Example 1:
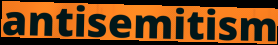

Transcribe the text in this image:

antisemitism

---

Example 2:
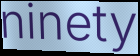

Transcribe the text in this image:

ninety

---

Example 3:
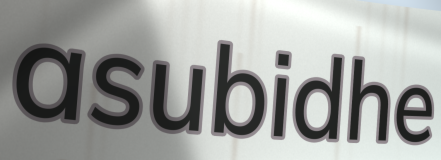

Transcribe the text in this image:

asubidhe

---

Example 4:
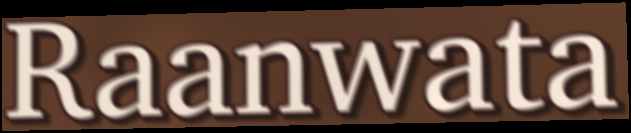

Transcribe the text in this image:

Raanwata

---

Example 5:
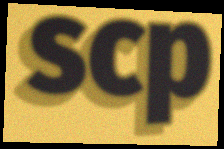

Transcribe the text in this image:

scp